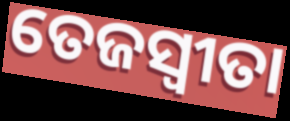
ତେଜସ୍ଵୀତା